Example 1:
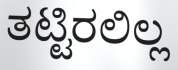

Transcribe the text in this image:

ತಟ್ಟಿರಲಿಲ್ಲ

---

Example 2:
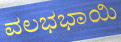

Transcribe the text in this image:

ವಲಭಭಾಯಿ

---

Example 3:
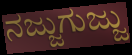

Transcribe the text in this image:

ನಜ್ಜುಗುಜ್ಜು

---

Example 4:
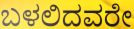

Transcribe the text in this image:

ಬಳಲಿದವರೇ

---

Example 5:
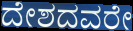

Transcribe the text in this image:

ದೇಶದವರೇ